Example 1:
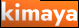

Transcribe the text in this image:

kimaya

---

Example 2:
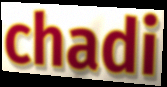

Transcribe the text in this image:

chadi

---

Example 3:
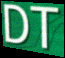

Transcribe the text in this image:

DT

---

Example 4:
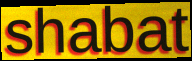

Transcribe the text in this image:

shabat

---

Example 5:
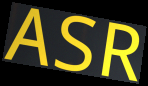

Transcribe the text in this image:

ASR